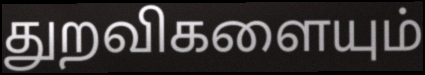
துறவிகளையும்